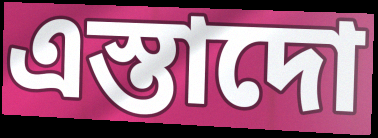
এস্তাদো